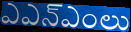
ఎఎన్ఎంలు